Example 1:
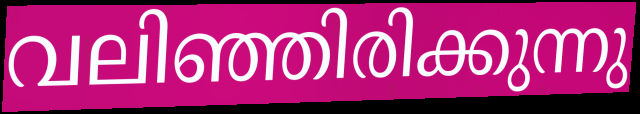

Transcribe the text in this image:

വലിഞ്ഞിരിക്കുന്നു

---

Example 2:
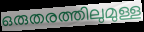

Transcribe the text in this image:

ഒരുതരത്തിലുമുള്ള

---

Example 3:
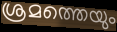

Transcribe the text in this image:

ശ്രമത്തെയും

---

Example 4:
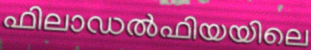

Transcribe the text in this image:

ഫിലാഡൽഫിയയിലെ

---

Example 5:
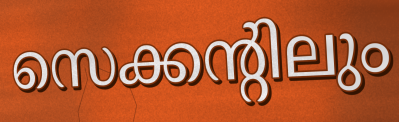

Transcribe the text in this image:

സെക്കന്റിലും